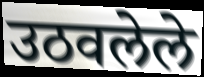
उठवलेले